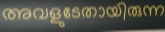
അവളുടേതായിരുന്ന